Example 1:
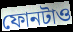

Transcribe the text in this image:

ফোনটাও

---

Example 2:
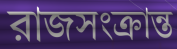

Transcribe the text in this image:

রাজসংক্রান্ত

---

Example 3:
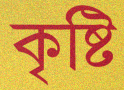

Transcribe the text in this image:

কৃষ্টি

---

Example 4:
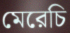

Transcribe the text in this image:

মেরেচি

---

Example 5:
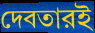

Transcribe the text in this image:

দেবতারই